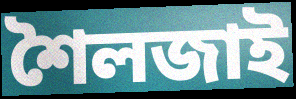
শৈলজাই